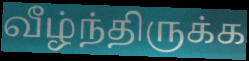
வீழ்ந்திருக்க